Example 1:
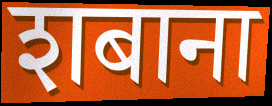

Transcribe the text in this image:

शबाना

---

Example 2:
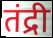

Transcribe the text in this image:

तंद्री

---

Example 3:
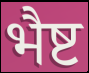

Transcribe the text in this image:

भैष्ट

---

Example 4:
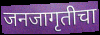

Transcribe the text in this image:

जनजागृतीचा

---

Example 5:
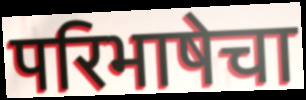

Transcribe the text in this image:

परिभाषेचा